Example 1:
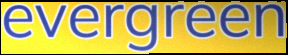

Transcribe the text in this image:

evergreen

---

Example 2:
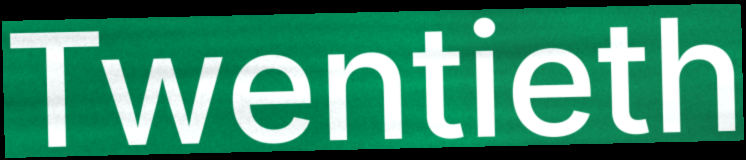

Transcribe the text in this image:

Twentieth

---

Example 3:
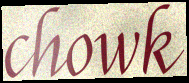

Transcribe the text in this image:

chowk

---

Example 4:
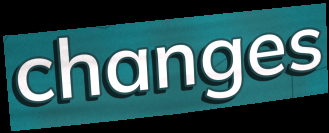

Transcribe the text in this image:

changes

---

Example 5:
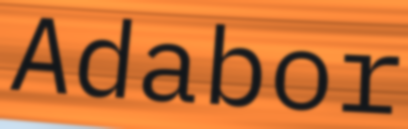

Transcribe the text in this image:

Adabor